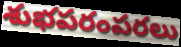
శుభపరంపరలు